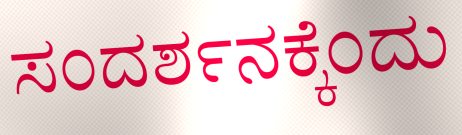
ಸಂದರ್ಶನಕ್ಕೆಂದು